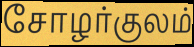
சோழர்குலம்